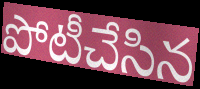
పోటీచేసిన